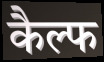
कैल्फ